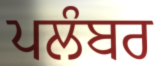
ਪਲੰਬਰ